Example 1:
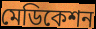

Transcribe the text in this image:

মেডিকেশন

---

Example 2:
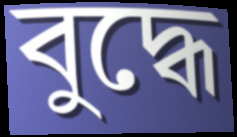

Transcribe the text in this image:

বুদ্ধে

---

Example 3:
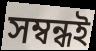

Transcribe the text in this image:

সম্বন্ধই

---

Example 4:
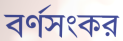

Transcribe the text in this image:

বর্ণসংকর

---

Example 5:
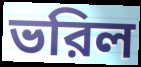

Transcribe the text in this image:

ভরিল